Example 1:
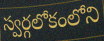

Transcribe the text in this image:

స్వర్గలోకంలోని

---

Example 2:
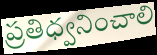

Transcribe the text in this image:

ప్రతిధ్వనించాలి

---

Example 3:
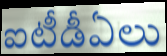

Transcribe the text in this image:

ఐటీడీఏలు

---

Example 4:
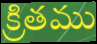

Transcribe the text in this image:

క్రితము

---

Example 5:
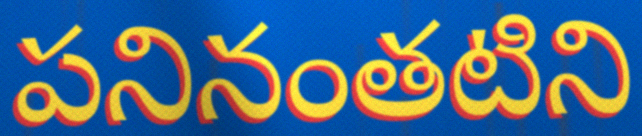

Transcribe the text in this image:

పనినంతటిని